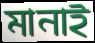
মানাই